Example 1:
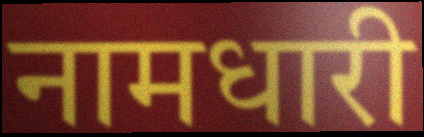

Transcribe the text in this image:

नामधारी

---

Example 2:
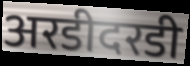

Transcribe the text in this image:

अरडीदरडी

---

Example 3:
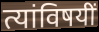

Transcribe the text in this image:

त्यांविषयीं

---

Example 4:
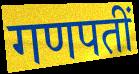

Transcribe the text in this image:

गणपतीं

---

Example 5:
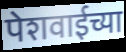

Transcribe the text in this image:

पेशवाईच्या